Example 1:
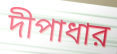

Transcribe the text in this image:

দীপাধার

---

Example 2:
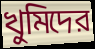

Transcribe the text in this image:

খুমিদের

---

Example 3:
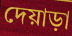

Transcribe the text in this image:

দেয়াড়া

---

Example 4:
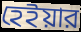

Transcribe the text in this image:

হেইয়ার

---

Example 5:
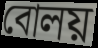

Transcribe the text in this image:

বোলয়